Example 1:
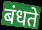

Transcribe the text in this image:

बंधते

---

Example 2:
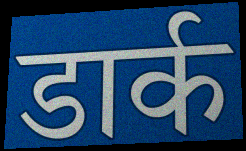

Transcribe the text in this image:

डार्क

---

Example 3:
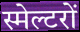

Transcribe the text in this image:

स्मेल्टरों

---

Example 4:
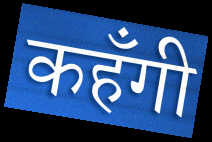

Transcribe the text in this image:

कहँगी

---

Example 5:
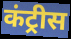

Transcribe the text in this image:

कंट्रीस